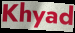
Khyad